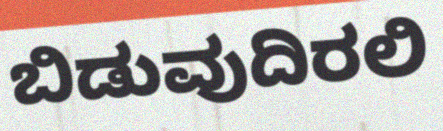
ಬಿಡುವುದಿರಲಿ